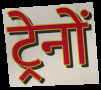
ट्रेनों